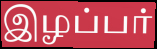
இழப்பர்